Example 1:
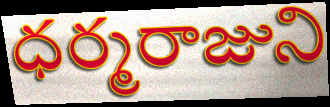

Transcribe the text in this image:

ధర్మరాజుని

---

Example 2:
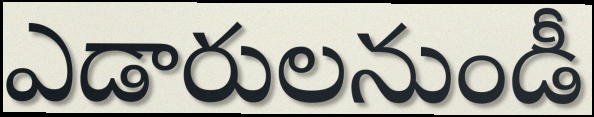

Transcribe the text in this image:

ఎడారులనుండీ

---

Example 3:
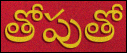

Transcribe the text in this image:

తోపుతో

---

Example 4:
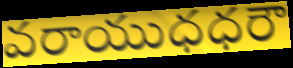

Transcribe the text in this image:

వరాయుధధరౌ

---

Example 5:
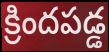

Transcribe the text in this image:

క్రిందపడ్డ